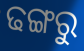
ଢଙ୍ଗରୁ